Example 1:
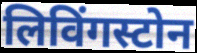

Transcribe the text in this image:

लिविंगस्टोन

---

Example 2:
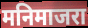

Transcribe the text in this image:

मनिमाजरा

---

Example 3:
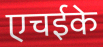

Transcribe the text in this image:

एचईके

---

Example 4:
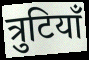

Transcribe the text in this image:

त्रुटियाँ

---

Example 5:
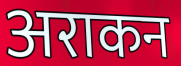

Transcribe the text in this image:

अराकन